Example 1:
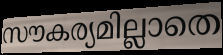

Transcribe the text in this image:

സൗകര്യമില്ലാതെ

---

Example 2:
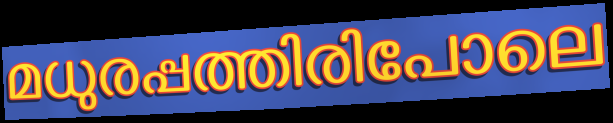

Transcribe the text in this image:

മധുരപ്പത്തിരിപോലെ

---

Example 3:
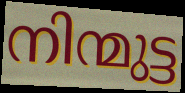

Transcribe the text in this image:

നിന്മുട്ട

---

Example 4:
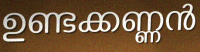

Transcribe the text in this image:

ഉണ്ടക്കണ്ണൻ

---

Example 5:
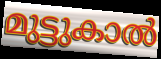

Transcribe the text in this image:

മുട്ടുകാൽ